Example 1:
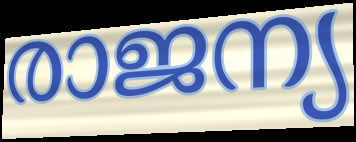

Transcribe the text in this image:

രാജന്യ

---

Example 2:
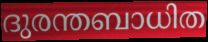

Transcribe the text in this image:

ദുരന്തബാധിത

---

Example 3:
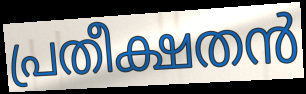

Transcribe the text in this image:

പ്രതീക്ഷതൻ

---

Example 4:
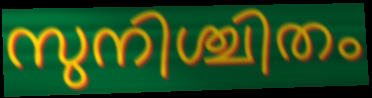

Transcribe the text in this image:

സുനിശ്ചിതം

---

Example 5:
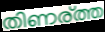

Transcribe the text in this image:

തിണര്ത്ത